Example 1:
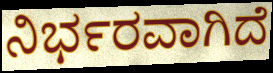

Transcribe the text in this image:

ನಿರ್ಭರವಾಗಿದೆ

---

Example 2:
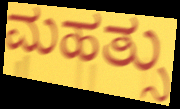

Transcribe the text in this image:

ಮಹತ್ಸು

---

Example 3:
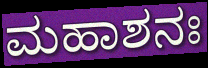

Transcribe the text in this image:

ಮಹಾಶನಃ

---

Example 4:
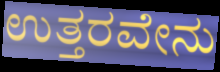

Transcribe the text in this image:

ಉತ್ತರವೇನು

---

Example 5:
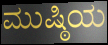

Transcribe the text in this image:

ಮುಷ್ಠಿಯ